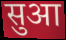
सुआ